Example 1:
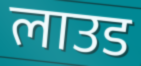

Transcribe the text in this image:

लाउड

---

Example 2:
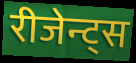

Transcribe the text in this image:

रीजेन्ट्स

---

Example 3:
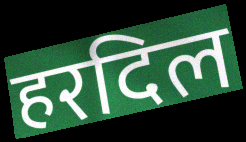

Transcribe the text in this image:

हरदिल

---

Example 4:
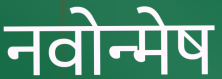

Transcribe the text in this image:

नवोन्‍मेष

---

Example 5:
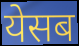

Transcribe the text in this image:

येसब